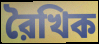
রৈখিক